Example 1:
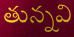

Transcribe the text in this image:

తున్నవి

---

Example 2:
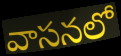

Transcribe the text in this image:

వాసనలో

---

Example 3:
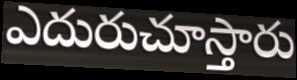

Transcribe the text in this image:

ఎదురుచూస్తారు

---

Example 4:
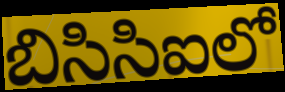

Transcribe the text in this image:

బిసిసిఐలో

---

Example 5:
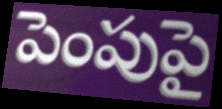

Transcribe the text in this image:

పెంపుపై